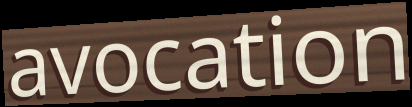
avocation